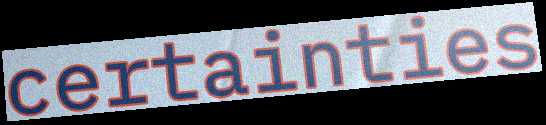
certainties